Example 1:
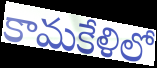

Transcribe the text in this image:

కామకేళిలో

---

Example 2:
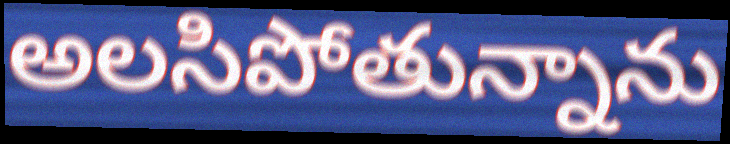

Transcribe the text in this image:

అలసిపోతున్నాను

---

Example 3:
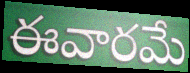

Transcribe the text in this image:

ఈవారమే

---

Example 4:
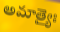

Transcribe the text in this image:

అమాత్యైః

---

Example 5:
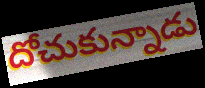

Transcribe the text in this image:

దోచుకున్నాడు